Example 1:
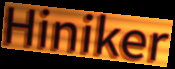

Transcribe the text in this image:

Hiniker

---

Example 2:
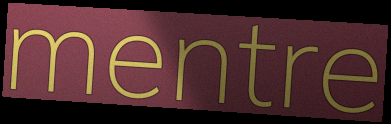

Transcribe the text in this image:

mentre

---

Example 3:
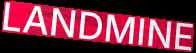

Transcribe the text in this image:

LANDMINE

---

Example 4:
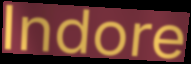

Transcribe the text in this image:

Indore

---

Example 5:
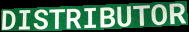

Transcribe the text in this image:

DISTRIBUTOR